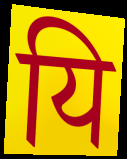
यि